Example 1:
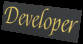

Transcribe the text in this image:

Developer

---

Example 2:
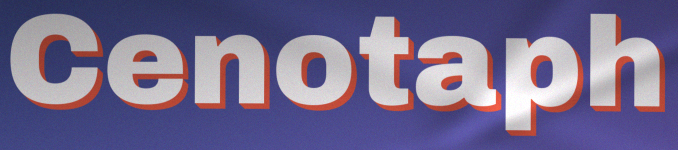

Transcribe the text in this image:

Cenotaph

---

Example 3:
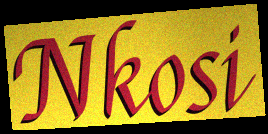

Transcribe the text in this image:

Nkosi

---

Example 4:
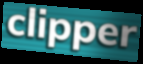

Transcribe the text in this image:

clipper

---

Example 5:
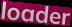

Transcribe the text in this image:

loader